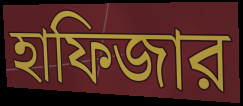
হাফিজার